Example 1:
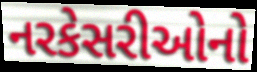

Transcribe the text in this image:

નરકેસરીઓનો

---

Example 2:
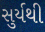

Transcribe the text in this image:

સુર્યથી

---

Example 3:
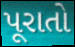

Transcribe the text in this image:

પૂરાતો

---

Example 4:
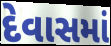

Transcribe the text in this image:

દેવાસમાં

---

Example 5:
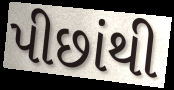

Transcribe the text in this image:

પીછાંથી